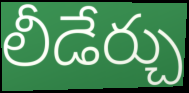
లీడేర్చు